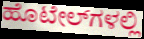
ಹೊಟೇಲ್‌ಗಳಲ್ಲಿ